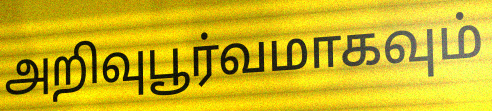
அறிவுபூர்வமாகவும்